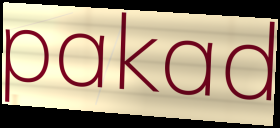
pakad